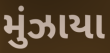
મુંઝાયા